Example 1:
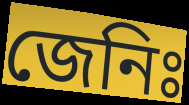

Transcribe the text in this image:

জেনিঃ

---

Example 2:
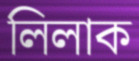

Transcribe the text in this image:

লিলাক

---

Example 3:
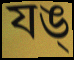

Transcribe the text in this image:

যঙ্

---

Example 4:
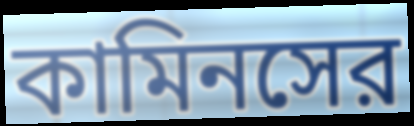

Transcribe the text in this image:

কামিনসের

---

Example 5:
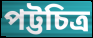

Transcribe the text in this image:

পট্টচিত্র